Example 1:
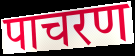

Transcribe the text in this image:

पाचरण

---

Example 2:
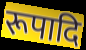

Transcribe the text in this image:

रूपादि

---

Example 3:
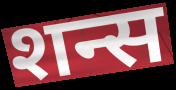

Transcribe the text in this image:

शन्स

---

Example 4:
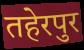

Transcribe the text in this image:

तहेरपुर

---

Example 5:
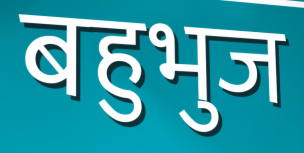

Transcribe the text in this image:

बहुभुज